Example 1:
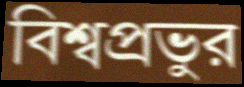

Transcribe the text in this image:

বিশ্বপ্রভুর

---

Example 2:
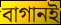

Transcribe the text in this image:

বাগানই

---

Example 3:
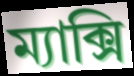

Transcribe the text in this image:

ম্যাক্সি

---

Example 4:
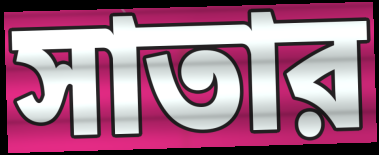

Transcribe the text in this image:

সাতার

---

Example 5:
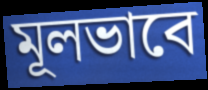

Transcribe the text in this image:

মূলভাবে